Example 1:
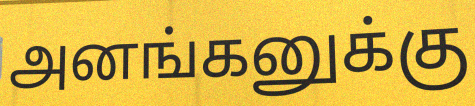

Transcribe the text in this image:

அனங்கனுக்கு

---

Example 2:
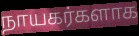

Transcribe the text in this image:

நாயகர்களாக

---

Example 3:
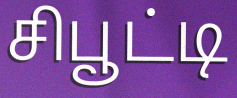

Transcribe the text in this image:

சிபூட்டி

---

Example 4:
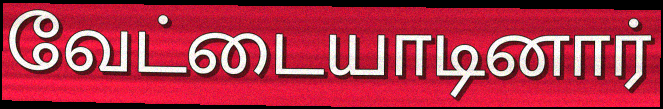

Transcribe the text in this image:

வேட்டையாடினார்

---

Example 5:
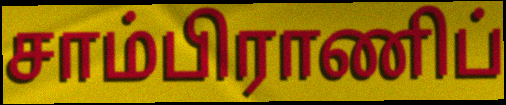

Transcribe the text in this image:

சாம்பிராணிப்